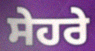
ਸੇਹਰੇ